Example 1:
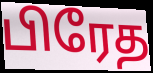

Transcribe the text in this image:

பிரேத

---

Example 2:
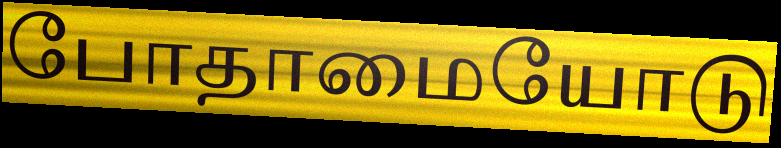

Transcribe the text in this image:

போதாமையோடு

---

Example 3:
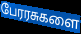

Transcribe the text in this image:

பேரரசுகளை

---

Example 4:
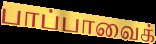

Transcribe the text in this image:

பாப்பாவைக்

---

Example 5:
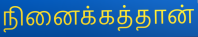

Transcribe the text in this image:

நினைக்கத்தான்